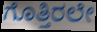
ಗೊತ್ತಿರಲೇ